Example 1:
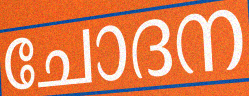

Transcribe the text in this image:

ചോദന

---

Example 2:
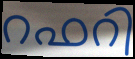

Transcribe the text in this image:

റഫറി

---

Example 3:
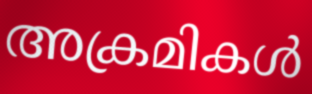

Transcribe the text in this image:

അക്രമികൾ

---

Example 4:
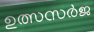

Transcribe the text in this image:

ഉത്സസർജ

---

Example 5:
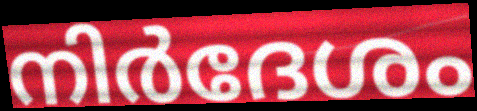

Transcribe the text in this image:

നിർദേശം